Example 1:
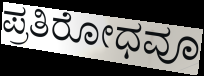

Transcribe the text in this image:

ಪ್ರತಿರೋಧವೂ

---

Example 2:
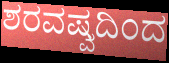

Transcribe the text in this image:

ಶರವಷ್ವದಿಂದ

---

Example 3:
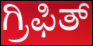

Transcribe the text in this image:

ಗ್ರಿಫಿತ್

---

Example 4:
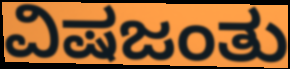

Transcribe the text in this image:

ವಿಷಜಂತು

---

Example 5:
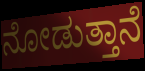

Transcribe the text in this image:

ನೋಡುತ್ತಾನೆ